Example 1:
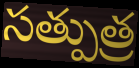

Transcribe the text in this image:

సత్పుత్ర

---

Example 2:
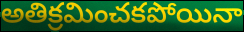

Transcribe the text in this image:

అతిక్రమించకపోయినా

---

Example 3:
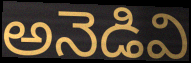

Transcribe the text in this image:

అనెడివి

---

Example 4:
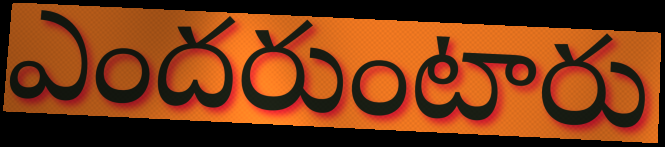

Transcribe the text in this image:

ఎందరుంటారు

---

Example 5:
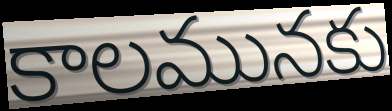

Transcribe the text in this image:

కాలమునకు